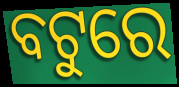
ବଟୁରେ